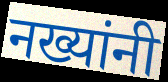
नख्यांनी